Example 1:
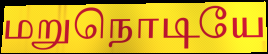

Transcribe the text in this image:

மறுநொடியே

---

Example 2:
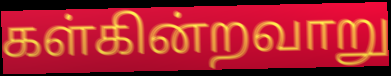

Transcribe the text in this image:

கள்கின்றவாறு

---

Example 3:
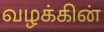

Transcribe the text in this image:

வழக்கின்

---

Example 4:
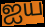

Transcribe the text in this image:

ஐய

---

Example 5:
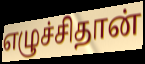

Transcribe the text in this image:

எழுச்சிதான்